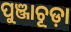
ପୁଞ୍ଜାଚୂଡ଼ା